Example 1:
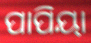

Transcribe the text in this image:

ପାପିୟା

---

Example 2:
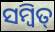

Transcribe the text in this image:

ସମ୍ବିତ୍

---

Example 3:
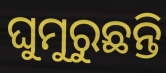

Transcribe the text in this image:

ଘୁମୁରୁଛନ୍ତି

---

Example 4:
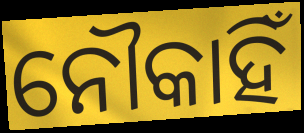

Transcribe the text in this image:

ନୌକାହିଁ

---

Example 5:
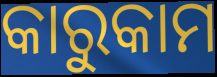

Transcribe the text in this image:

କାରୁକାମ